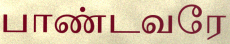
பாண்டவரே